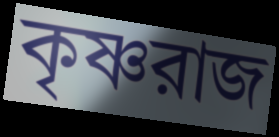
কৃষ্ণরাজ